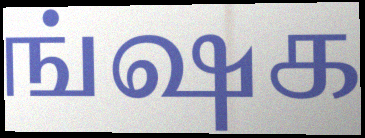
ங்ஷக